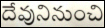
దేవునినుంచి